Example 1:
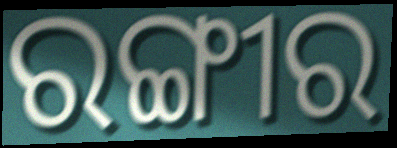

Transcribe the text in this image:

ରଙ୍ଗୀର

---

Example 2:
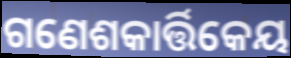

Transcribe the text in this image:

ଗଣେଶକାର୍ତ୍ତିକେୟ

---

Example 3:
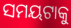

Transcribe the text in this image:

ସମୟଟାକୁ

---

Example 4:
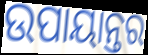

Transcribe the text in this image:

ଉପାୟାନ୍ତର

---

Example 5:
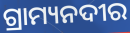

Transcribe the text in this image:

ଗ୍ରାମ୍ୟନଦୀର